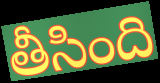
తీసింది